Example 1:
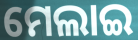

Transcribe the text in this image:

ମେଲାଇ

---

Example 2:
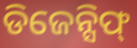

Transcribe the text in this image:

ଡିଜେନ୍ସିଫ୍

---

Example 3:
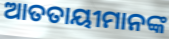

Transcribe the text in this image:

ଆତତାୟୀମାନଙ୍କ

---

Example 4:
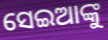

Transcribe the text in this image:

ସେଇଆଙ୍କୁ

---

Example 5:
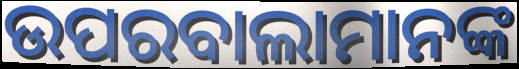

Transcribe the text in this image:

ଉପରବାଲାମାନଙ୍କ